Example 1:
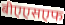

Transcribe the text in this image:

बीएएसएफ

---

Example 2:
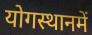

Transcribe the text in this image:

योगस्थानमें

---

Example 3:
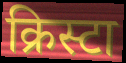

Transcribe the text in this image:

क्रिस्टा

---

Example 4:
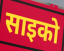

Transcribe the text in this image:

साइको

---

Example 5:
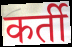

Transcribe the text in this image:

कर्ती